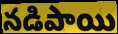
నడిపాయి